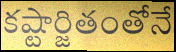
కష్టార్జితంతోనే